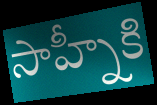
సాహ్నీకి